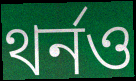
থর্নও